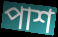
পাশ